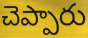
చెప్పారు